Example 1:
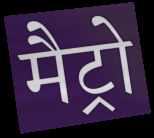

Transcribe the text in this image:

मैट्रो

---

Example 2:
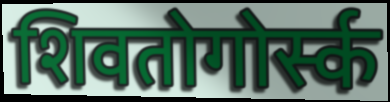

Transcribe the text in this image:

शिवतोगोर्स्क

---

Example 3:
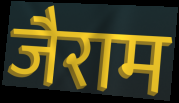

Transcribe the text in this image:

जैराम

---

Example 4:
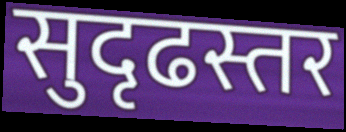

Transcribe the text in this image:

सुदृढस्तर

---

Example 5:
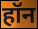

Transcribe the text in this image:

हॉन